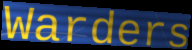
Warders